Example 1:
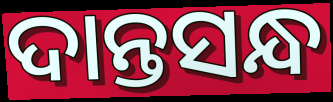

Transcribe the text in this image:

ଦାନ୍ତସନ୍ଧ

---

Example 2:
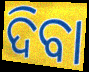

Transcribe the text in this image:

ଦିବା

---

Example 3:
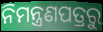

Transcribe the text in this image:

ନିମନ୍ତ୍ରଣପତ୍ରରୁ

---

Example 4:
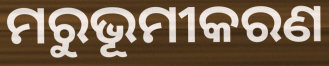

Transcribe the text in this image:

ମରୁଭୂମୀକରଣ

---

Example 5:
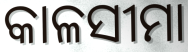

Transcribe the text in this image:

କାଳସୀମା